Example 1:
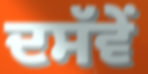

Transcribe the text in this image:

ਦਸੱਵੇਂ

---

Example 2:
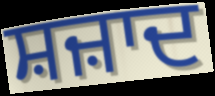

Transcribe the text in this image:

ਸ਼ਜ਼ਾਦ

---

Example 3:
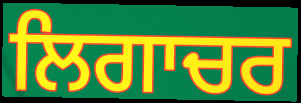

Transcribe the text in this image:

ਲਿਗਾਚਰ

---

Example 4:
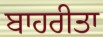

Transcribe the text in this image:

ਬਾਹਰੀਤਾ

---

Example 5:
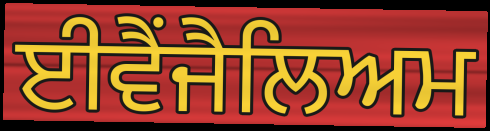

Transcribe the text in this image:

ਈਵੈਂਜੈਲਿਅਮ